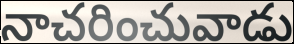
నాచరించువాడు